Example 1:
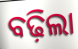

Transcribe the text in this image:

ବଢ଼ିଲା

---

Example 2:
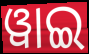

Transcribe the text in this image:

ୱାଇ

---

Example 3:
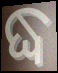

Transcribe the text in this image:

ଦ୍ଧ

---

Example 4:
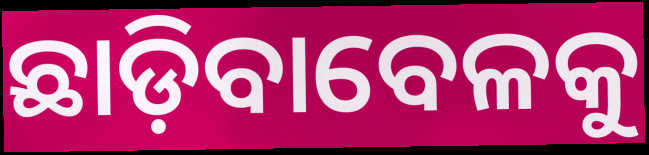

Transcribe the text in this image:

ଛାଡ଼ିବାବେଳକୁ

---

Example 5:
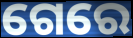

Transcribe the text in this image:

ଗେରେ